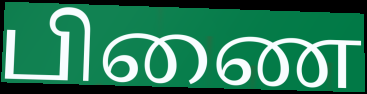
பிணை